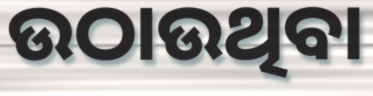
ଉଠାଉଥିବା